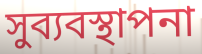
সুব্যবস্থাপনা